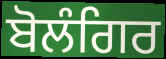
ਬੋਲੰਗਿਰ